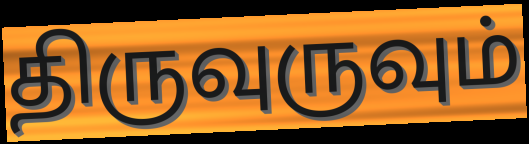
திருவுருவும்